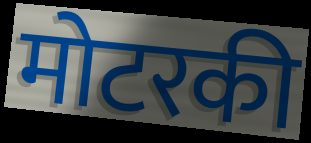
मोटरकी